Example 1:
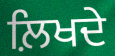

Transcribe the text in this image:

ਲ਼ਿਖਦੇ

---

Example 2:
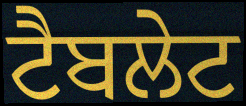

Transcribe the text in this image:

ਟੈਬਲੇਟ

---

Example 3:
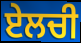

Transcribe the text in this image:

ਏਲਚੀ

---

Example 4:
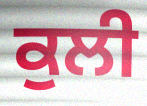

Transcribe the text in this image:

ਕੁਲੀ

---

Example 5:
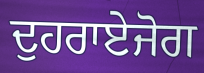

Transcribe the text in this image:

ਦੁਹਰਾਏਜੋਗ